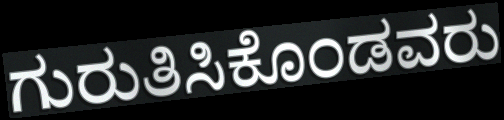
ಗುರುತಿಸಿಕೊಂಡವರು